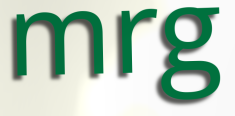
mrg